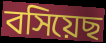
বসিয়েছ